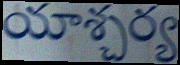
యాశ్చర్య